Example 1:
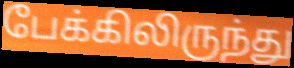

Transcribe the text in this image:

பேக்கிலிருந்து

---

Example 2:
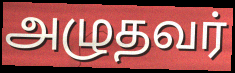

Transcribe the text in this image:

அழுதவர்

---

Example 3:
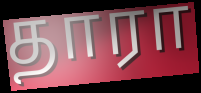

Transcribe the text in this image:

தாரா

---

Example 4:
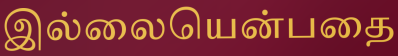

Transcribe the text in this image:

இல்லையென்பதை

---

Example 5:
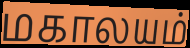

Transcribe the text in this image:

மகாலயம்